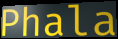
Phala